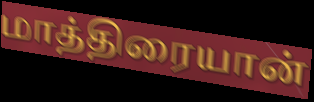
மாத்திரையான்